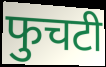
फुचटी